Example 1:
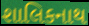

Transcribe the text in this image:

શાલિકનાથ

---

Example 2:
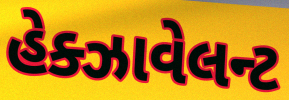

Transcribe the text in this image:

હેક્ઝાવેલન્ટ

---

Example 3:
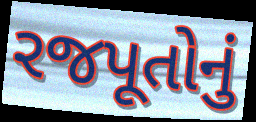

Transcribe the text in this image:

રજપૂતોનું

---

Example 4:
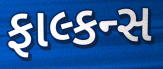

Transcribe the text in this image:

ફાલ્કન્સ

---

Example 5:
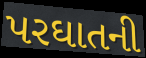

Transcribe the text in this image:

પરઘાતની